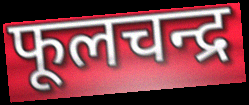
फूलचन्द्र